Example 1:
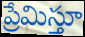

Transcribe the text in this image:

ప్రేమిస్తూ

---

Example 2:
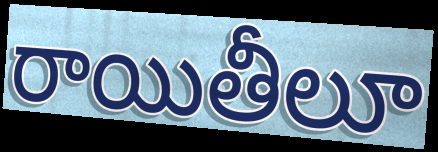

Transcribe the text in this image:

రాయితీలూ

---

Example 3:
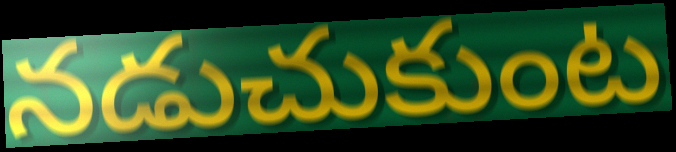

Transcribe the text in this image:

నడుచుకుంట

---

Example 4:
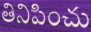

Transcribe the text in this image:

తినిపించు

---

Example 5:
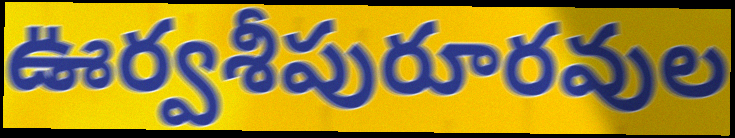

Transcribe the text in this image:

ఊర్వశీపురూరవుల